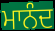
ਮਾਨੰਦ